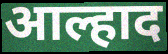
आल्हाद